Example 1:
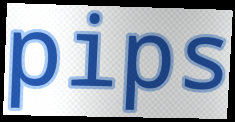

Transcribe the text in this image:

pips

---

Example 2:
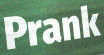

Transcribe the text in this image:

Prank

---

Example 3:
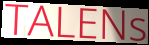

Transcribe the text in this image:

TALENs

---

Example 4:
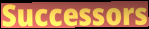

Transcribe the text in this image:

Successors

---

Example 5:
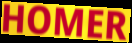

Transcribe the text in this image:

HOMER